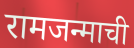
रामजन्माची